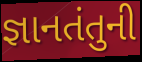
જ્ઞાનતંતુની